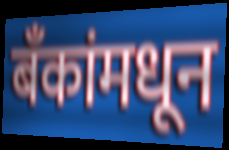
बॅंकांमधून